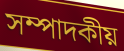
সম্পাদকীয়